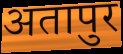
अतापुर